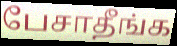
பேசாதீங்க